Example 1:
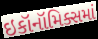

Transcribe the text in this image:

ઇકૉનૉમિક્સમાં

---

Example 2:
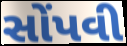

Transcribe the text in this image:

સોંપવી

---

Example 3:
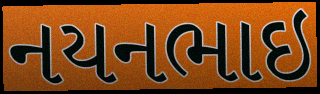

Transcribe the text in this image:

નયનભાઇ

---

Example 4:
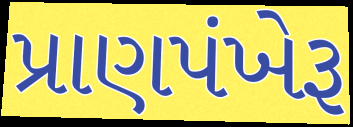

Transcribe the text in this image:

પ્રાણપંખેરૂ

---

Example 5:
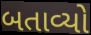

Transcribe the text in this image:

બતાવ્યો